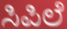
ಸಿಪಿಲೆ